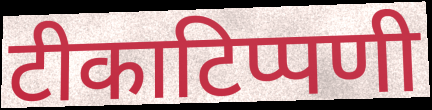
टीकाटिप्पणी